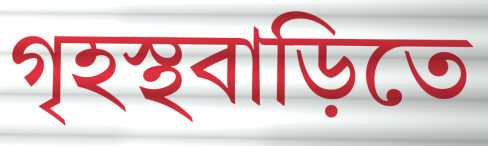
গৃহস্থবাড়িতে